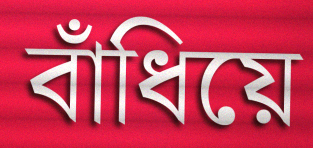
বাঁধিয়ে